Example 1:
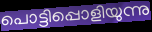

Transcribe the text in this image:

പൊട്ടിപ്പൊളിയുന്നു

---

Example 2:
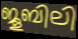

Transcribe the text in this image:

ജൂബിലി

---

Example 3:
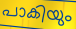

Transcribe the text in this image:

പാകിയും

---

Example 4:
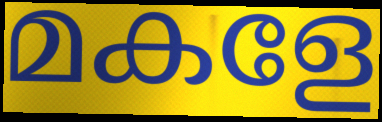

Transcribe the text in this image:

മകളേ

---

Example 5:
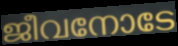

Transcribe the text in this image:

ജീവനോടേ